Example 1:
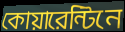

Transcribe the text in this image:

কোয়ারেন্টিনে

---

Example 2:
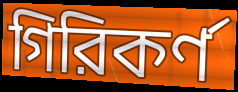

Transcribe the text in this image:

গিরিকর্ণ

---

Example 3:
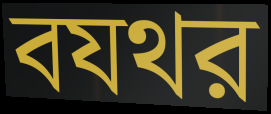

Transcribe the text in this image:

বযথর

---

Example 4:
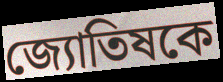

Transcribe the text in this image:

জ্যোতিষকে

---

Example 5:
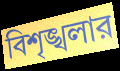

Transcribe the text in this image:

বিশৃঙ্খলার